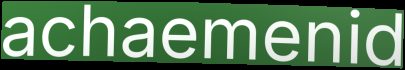
achaemenid